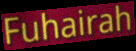
Fuhairah